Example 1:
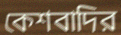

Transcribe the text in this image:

কেশবাদির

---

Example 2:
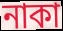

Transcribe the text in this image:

নাকা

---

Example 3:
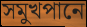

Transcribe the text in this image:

সমুখপানে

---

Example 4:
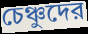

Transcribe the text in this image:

চেঞ্চুদের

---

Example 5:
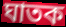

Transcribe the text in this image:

ঘাতক